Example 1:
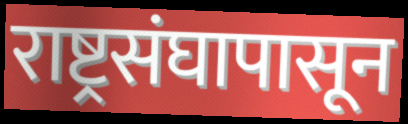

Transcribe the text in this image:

राष्ट्रसंघापासून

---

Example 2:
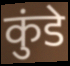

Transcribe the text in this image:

कुंडे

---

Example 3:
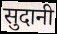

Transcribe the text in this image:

सुदानी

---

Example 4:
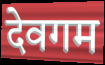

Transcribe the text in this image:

देवगम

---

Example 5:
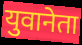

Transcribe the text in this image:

युवानेता